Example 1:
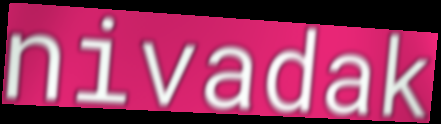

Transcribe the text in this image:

nivadak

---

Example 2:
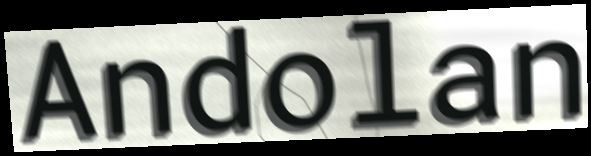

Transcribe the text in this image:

Andolan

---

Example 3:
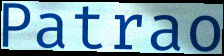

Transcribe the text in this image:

Patrao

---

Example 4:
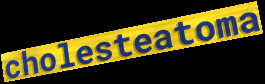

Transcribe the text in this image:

cholesteatoma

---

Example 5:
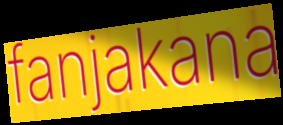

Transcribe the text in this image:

fanjakana